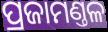
ପ୍ରଜାମଣ୍ତଳ